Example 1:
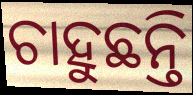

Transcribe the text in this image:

ଚାହୁଛନ୍ତି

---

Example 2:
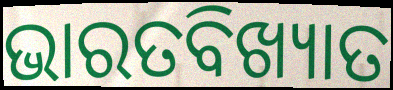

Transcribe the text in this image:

ଭାରତବିଖ୍ୟାତ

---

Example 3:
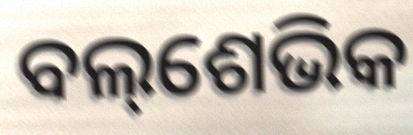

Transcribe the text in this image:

ବଲ୍‌ଶେଭିକ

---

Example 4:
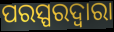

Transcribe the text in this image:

ପରସ୍ପରଦ୍ୱାରା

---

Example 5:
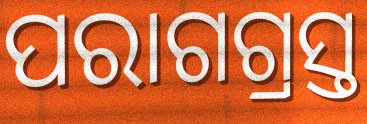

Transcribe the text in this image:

ପରାଗଗ୍ରସ୍ତ